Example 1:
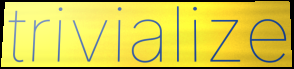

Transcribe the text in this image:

trivialize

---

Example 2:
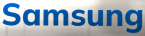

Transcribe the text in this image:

Samsung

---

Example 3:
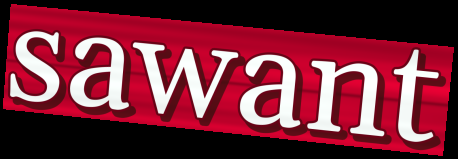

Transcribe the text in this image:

sawant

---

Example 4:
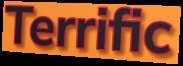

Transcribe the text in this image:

Terrific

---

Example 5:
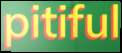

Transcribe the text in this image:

pitiful